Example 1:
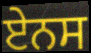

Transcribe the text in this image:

ਏਨਸ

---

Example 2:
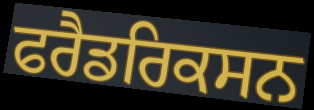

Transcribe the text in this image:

ਫਰੈਡਰਿਕਸਨ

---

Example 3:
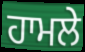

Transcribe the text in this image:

ਹਾਮਲੇ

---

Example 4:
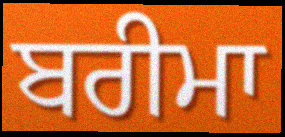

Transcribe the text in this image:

ਬਰੀਮਾ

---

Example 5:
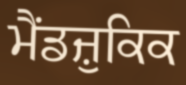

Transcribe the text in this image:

ਮੈਂਡਜ਼ੁਕਿਕ